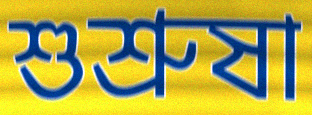
শুশ্রুষা